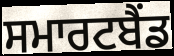
ਸਮਾਰਟਬੈਂਡ